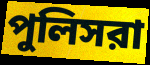
পুলিসরা